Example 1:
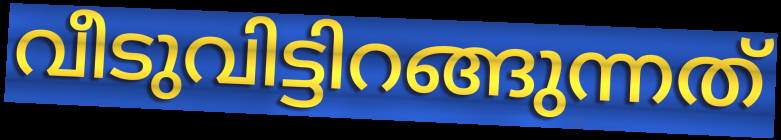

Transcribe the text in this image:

വീടുവിട്ടിറങ്ങുന്നത്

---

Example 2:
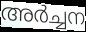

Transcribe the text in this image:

അർച്ചന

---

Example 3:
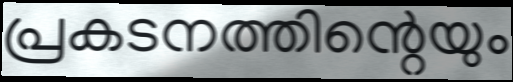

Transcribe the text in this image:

പ്രകടനത്തിന്റെയും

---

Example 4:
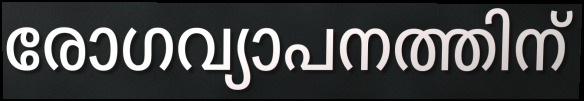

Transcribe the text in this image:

രോഗവ്യാപനത്തിന്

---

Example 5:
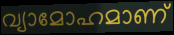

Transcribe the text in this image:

വ്യാമോഹമാണ്